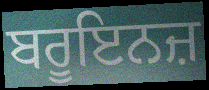
ਬਰੂਇਨਜ਼